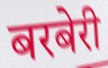
बरबेरी